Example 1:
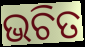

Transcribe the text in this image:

ଭଚିତ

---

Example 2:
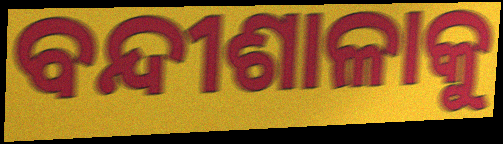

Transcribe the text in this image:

ବନ୍ଦୀଶାଳାକୁ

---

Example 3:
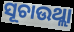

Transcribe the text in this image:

ସୂଚାଉଥ୍ଲା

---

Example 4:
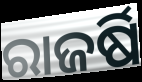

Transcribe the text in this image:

ରାଜର୍ଷି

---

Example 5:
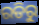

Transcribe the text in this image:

ରଡିରୁ